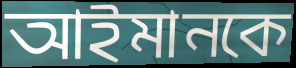
আইমানকে